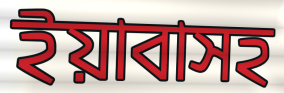
ইয়াবাসহ